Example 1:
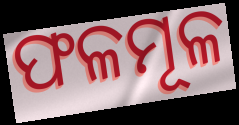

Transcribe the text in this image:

ଫଳମୂଳ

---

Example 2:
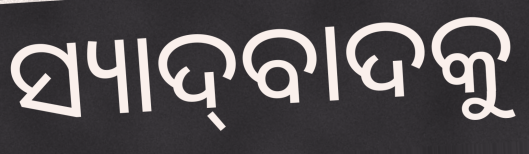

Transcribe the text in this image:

ସ୍ୟାଦ୍‌ବାଦକୁ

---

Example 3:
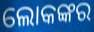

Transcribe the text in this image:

ଲୋକଙ୍କର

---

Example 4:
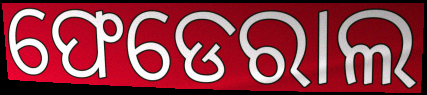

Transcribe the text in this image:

ଫେଡେରାଲ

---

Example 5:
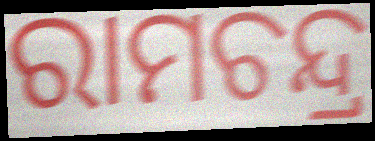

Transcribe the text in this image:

ରାମଚନ୍ଦ୍ର